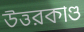
উত্তরকাণ্ড